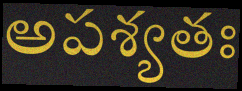
అపశ్యతః